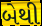
બેથી